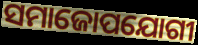
ସମାଜୋପଯୋଗୀ